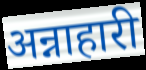
अन्नाहारी